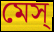
মেস্